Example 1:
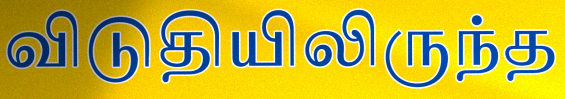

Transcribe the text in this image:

விடுதியிலிருந்த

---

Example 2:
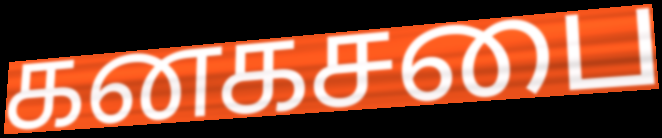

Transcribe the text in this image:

கனகசபை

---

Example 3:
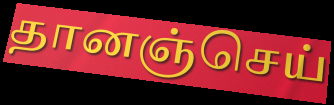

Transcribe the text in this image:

தானஞ்செய்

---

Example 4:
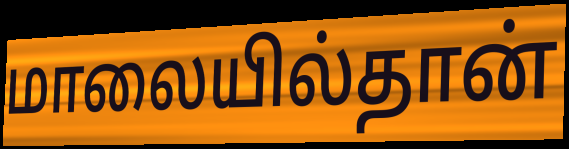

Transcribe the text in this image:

மாலையில்தான்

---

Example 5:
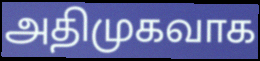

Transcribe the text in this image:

அதிமுகவாக